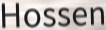
Hossen